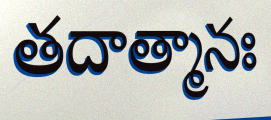
తదాత్మానః